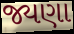
જ્યણા